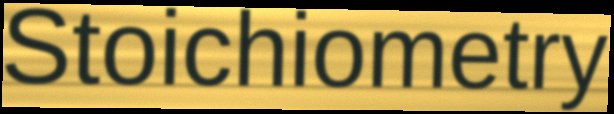
Stoichiometry